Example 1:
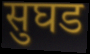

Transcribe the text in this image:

सुघड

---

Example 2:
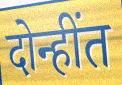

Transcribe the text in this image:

दोन्हींत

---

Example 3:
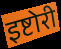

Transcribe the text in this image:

इष्टोरी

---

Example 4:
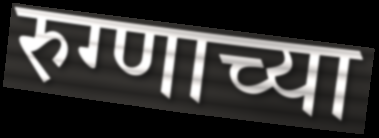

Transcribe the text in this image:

रुग्णाच्या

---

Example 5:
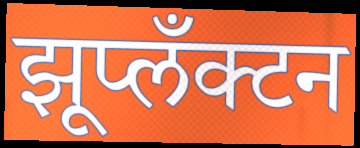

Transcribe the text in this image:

झूप्लँक्टन